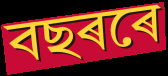
বছৰৰে